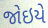
જોઇયે